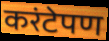
करंटेपण